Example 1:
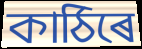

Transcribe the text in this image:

কাঠিৰে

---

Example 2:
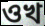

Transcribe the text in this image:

ওখ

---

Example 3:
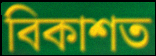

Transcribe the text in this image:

বিকাশত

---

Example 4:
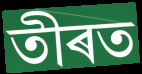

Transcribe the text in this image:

তীৰত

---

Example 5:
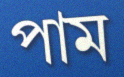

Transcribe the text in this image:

পাম